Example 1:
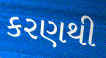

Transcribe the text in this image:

કરણથી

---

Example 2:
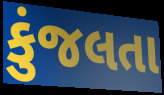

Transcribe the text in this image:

કુંજલતા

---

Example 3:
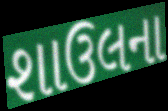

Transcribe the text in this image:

શાઉલના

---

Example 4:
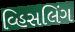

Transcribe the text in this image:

વ્હિસલિંગ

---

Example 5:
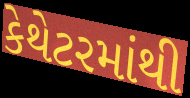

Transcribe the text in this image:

કેથેટરમાંથી